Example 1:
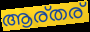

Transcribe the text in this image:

ആര്തര്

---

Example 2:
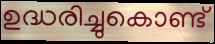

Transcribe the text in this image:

ഉദ്ധരിച്ചുകൊണ്ട്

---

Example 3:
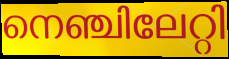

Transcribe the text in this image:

നെഞ്ചിലേറ്റി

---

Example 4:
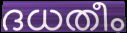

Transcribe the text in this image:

ദധതീം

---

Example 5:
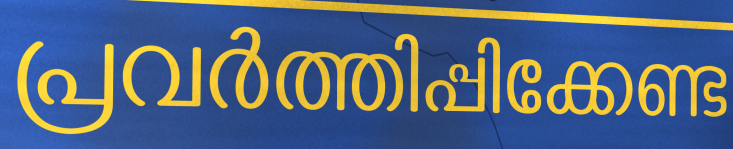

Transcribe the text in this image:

പ്രവർത്തിപ്പിക്കേണ്ട